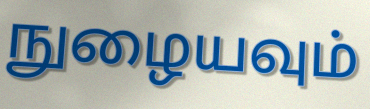
நுழையவும்